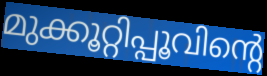
മുക്കൂറ്റിപ്പൂവിന്റെ